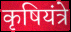
कृषियंत्रे